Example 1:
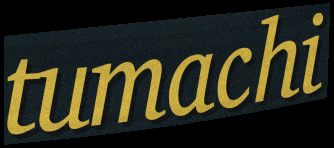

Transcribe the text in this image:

tumachi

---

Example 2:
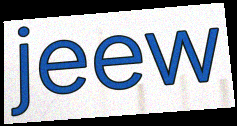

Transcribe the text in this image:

jeew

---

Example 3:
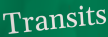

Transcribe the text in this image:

Transits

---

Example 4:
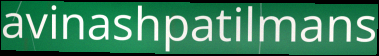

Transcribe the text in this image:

avinashpatilmans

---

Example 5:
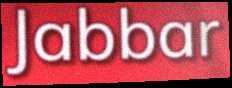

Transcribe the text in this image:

Jabbar